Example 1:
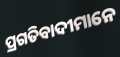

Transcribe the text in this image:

ପ୍ରଗତିବାଦୀମାନେ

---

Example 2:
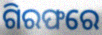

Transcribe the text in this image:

ଗିରଫରେ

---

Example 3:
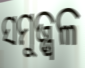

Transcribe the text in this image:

ସମୁଜ୍ଜ୍ୱଳ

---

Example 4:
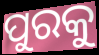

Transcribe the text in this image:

ପୁରକୁ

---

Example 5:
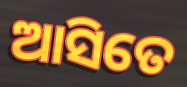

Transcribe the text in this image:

ଆସିତେ